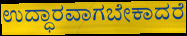
ಉದ್ಧಾರವಾಗಬೇಕಾದರೆ